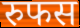
रुफस